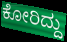
ಕೋರಿದ್ದು